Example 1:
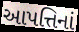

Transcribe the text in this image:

આપત્તિનાં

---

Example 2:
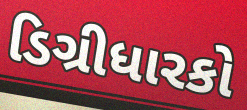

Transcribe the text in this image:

ડિગ્રીધારકો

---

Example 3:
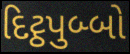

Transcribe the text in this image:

દિટ્ઠપુબ્બો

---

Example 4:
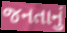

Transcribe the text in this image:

જનતાનું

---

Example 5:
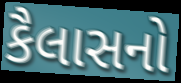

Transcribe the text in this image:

કૈલાસનો